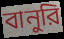
বানুরি